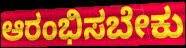
ಆರಂಭಿಸಬೇಕು